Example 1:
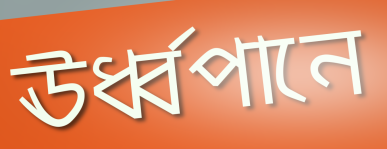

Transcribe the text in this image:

ঊর্ধ্বপানে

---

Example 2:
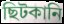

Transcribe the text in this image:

ছিটকানি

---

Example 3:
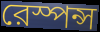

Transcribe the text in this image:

রেস্পন্স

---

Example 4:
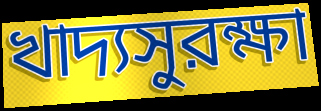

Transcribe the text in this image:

খাদ্যসুরক্ষা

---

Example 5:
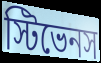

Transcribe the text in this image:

স্টিভেনস